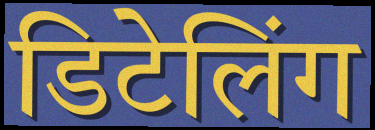
डिटेलिंग